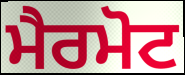
ਮੈਰਮੋਟ